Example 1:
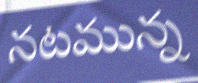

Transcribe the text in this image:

నటమున్న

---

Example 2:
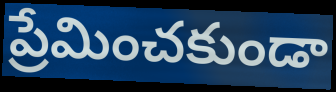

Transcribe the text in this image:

ప్రేమించకుండా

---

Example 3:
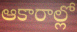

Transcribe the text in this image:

ఆకారాల్లో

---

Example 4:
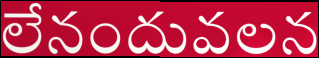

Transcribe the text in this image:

లేనందువలన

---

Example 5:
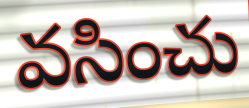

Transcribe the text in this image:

వసించు